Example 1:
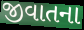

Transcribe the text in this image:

જીવાતના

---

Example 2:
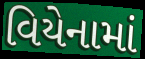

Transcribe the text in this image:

વિયેનામાં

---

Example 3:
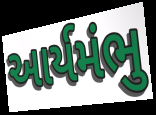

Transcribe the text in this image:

આર્યમંભુ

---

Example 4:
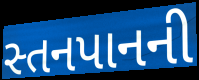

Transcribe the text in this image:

સ્તનપાનની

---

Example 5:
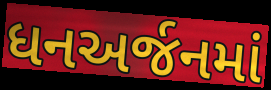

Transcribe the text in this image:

ધનઅર્જનમાં